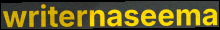
writernaseema